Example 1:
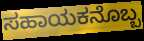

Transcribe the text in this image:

ಸಹಾಯಕನೊಬ್ಬ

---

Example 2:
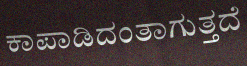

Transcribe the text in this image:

ಕಾಪಾಡಿದಂತಾಗುತ್ತದೆ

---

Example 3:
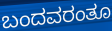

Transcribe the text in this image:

ಬಂದವರಂತೂ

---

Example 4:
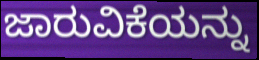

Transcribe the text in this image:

ಜಾರುವಿಕೆಯನ್ನು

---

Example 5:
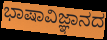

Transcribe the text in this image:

ಭಾಷಾವಿಜ್ಞಾನದ